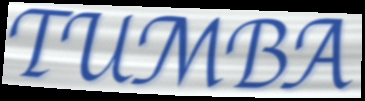
TUMBA